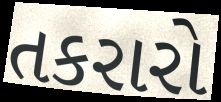
તકરારો